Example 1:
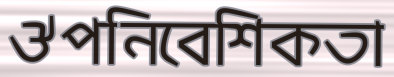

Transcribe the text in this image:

ঔপনিবেশিকতা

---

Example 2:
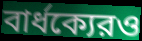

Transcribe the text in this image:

বার্ধক্যেরও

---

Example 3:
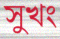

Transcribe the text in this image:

সুখং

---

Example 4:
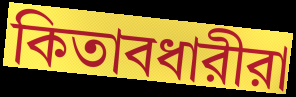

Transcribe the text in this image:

কিতাবধারীরা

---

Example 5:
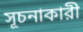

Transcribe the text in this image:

সূচনাকারী